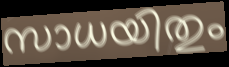
സാധയിതും